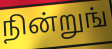
நின்றுங்